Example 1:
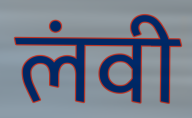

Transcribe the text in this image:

लंवी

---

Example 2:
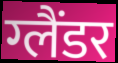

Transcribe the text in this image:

ग्लैंडर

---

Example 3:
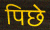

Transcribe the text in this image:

पिछे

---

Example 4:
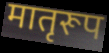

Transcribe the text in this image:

मातृरूप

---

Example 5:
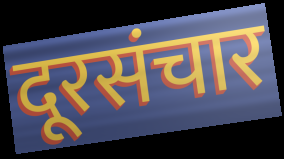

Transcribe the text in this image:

दूरसंचार